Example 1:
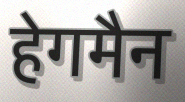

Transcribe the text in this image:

हेगमैन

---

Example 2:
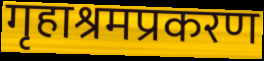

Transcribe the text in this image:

गृहाश्रमप्रकरण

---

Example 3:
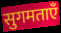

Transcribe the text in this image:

सुगमताएँ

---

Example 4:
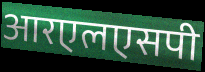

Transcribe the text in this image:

आरएलएसपी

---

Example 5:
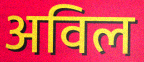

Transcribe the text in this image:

अविल